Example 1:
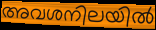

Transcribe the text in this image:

അവശനിലയിൽ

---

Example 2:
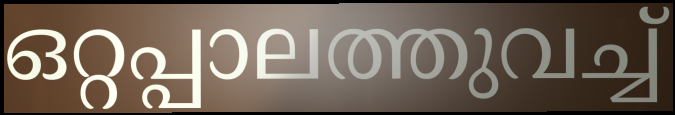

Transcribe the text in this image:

ഒറ്റപ്പാലത്തുവച്ച്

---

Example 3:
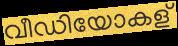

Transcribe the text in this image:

വീഡിയോകള്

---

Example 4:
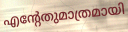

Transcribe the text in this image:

എന്റേതുമാത്രമായി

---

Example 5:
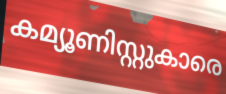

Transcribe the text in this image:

കമ്യൂണിസ്റ്റുകാരെ